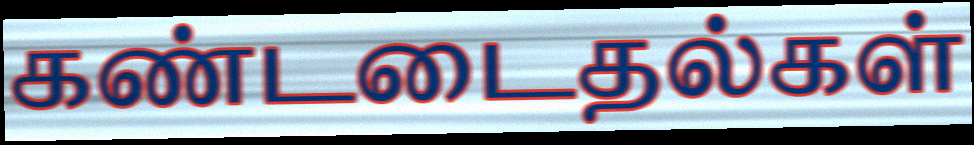
கண்டடைதல்கள்